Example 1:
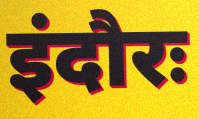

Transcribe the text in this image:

इंदौरः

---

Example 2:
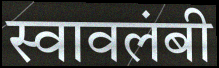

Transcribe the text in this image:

स्वावलंबी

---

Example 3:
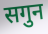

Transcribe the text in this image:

सगुन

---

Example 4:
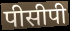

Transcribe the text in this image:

पीसीपी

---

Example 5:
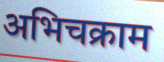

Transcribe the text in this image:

अभिचक्राम